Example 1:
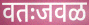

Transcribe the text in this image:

वतःजवळ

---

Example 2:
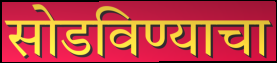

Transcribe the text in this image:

सोडविण्याचा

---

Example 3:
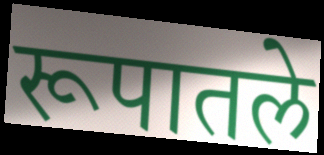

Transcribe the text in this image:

रूपातले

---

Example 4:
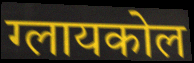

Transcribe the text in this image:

ग्लायकोल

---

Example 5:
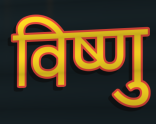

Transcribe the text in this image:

विष्णु